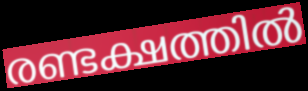
രണ്ടക്ഷത്തിൽ